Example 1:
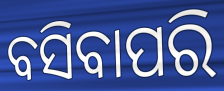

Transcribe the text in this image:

ବସିବାପରି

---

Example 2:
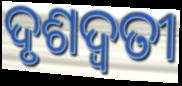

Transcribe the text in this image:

ଦୃଶଦ୍ୱତୀ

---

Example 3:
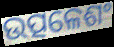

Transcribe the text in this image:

ଉତ୍ପଳେଶଂ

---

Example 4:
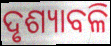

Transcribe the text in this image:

ଦୃଶ୍ୟାବଳି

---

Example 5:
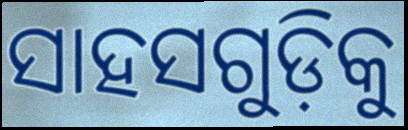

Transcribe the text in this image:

ସାହସଗୁଡ଼ିକୁ